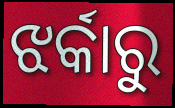
ଝର୍କାରୁ